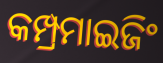
କମ୍ପ୍ରମାଇଜିଂ